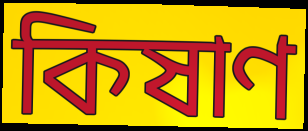
কিষাণ